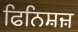
ਫਿਨਿਸ਼ਜ਼